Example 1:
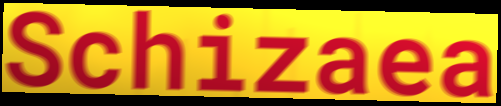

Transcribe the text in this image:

Schizaea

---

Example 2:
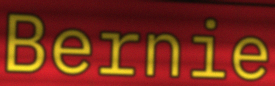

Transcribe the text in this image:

Bernie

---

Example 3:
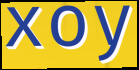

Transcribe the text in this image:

xoy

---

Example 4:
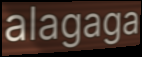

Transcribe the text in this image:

alagaga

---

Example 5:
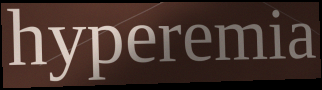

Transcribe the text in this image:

hyperemia